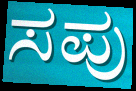
ಸಪು